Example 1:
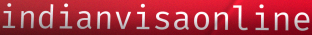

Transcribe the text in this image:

indianvisaonline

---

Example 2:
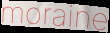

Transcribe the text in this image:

moraine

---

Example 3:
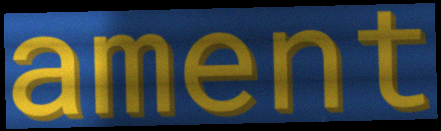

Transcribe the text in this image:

ament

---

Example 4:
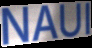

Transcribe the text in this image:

NAUI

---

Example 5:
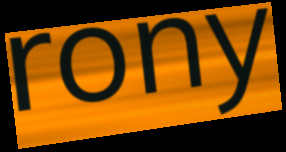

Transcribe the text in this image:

rony